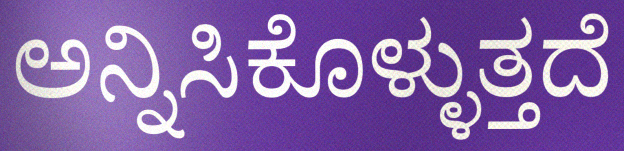
ಅನ್ನಿಸಿಕೊಳ್ಳುತ್ತದೆ